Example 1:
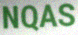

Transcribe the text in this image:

NQAS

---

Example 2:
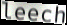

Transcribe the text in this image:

leech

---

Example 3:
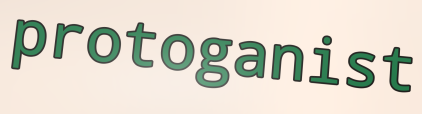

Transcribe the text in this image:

protoganist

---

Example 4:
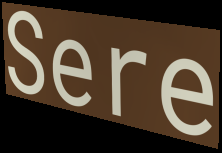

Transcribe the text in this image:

Sere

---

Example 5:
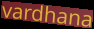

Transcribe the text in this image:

vardhana